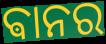
ଵାନର